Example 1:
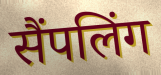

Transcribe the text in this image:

सैंपलिंग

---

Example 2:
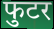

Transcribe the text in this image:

फुटर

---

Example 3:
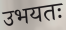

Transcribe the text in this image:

उभयतः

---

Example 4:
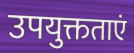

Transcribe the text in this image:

उपयुक्तताएं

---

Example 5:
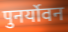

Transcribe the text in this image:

पुनर्योवन